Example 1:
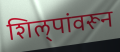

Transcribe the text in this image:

शिल्पांवरून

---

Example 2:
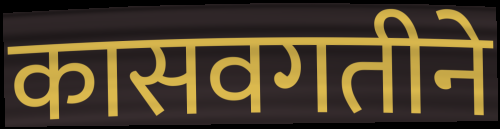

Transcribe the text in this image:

कासवगतीने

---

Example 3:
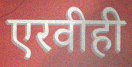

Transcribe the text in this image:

एरवीही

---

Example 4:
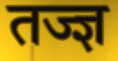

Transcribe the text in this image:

तज्‍ज्ञ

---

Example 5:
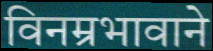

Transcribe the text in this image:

विनम्रभावाने